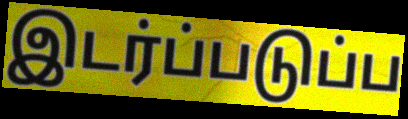
இடர்ப்படுப்ப